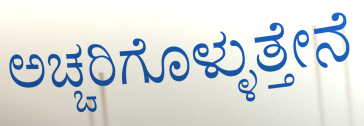
ಅಚ್ಚರಿಗೊಳ್ಳುತ್ತೇನೆ